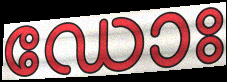
ഡോഃ